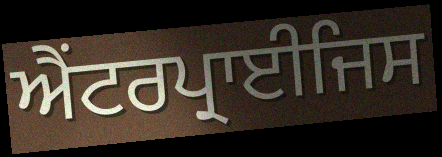
ਐਂਟਰਪ੍ਰਾਈਜਿਸ